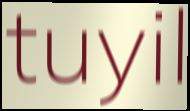
tuyil